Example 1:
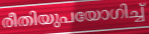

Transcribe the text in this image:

രീതിയുപയോഗിച്ച്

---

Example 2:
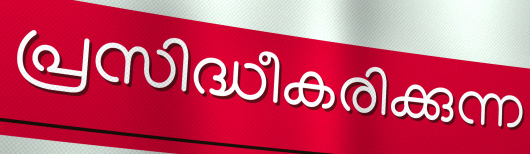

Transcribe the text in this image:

പ്രസിദ്ധീകരിക്കുന്ന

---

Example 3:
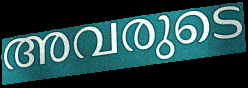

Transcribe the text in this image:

അവരുടെ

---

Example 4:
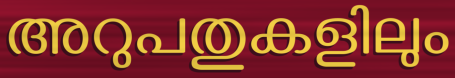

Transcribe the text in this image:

അറുപതുകളിലും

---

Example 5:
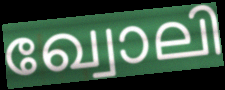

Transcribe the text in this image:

ഖ്വോലി